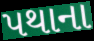
પથાના